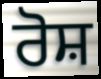
ਰੋਸ਼